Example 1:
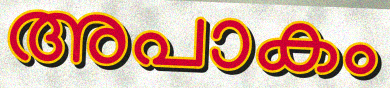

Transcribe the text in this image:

അപാകം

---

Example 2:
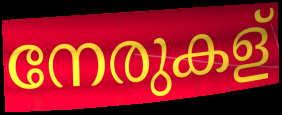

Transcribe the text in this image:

നേരുകള്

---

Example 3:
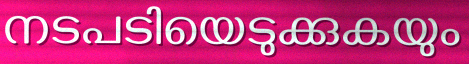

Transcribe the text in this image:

നടപടിയെടുക്കുകയും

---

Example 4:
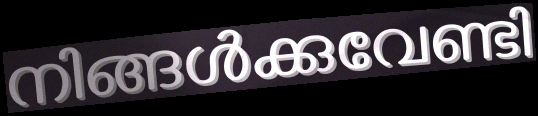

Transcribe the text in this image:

നിങ്ങൾക്കുവേണ്ടി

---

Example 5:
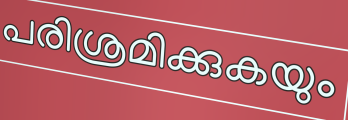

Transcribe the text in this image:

പരിശ്രമിക്കുകയും